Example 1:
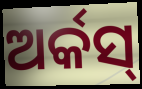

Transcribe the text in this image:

ଅର୍କସ୍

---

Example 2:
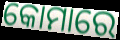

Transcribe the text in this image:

କୋମାରେ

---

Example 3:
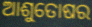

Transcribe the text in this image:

ଆଶୁତୋଷର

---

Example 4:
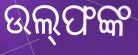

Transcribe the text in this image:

ଉଲ୍‌ଫଙ୍କ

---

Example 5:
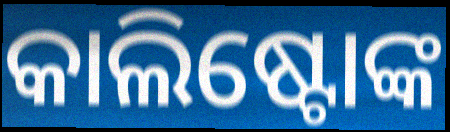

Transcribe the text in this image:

କାଲିଷ୍ଟୋଙ୍କ